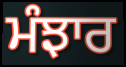
ਮੰਝਾਰ